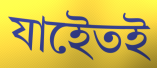
যাইেতই